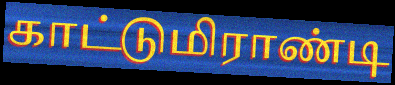
காட்டுமிராண்டி